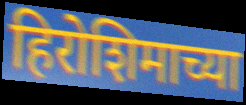
हिरोशिमाच्या